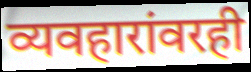
व्यवहारांवरही